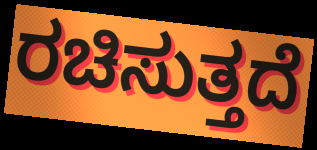
ರಚಿಸುತ್ತದೆ